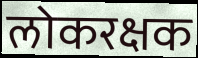
लोकरक्षक